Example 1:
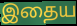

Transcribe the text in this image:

இதைய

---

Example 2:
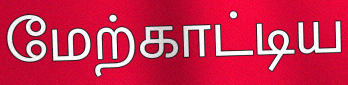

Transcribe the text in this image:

மேற்காட்டிய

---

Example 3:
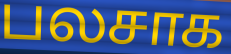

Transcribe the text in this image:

பலசாக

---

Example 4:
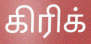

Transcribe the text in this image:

கிரிக்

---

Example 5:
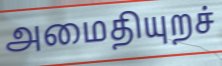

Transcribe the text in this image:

அமைதியுறச்